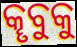
କୄବୁକୁ